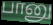
பானு